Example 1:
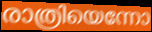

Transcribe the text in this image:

രാത്രിയെന്നോ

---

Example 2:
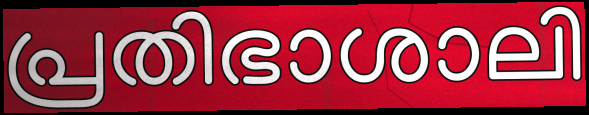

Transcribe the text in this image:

പ്രതിഭാശാലി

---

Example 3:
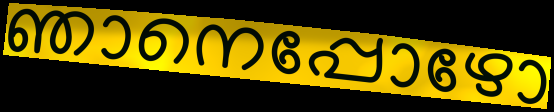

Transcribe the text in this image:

ഞാനെപ്പോഴോ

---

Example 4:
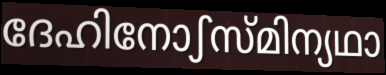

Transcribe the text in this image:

ദേഹിനോഽസ്മിന്യഥാ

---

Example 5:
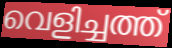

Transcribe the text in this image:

വെളിച്ചത്ത്